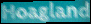
Hoagland